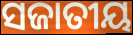
ସଜାତୀୟ